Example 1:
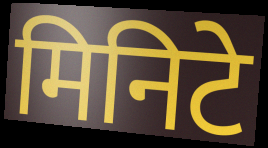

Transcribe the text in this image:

मिनिटे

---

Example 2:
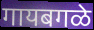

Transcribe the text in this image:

गायबगळे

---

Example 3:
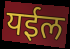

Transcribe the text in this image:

यईल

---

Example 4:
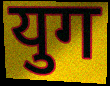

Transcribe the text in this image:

युग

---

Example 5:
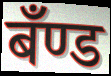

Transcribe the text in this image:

बँण्ड